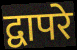
द्वापरे